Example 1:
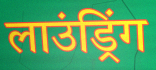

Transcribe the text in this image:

लाउंड्रिंग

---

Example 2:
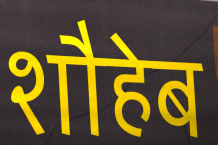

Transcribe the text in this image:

शौहेब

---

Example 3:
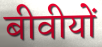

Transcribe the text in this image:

बीवीयों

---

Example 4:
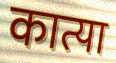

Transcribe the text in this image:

कात्या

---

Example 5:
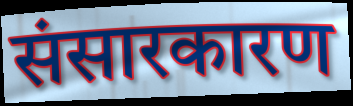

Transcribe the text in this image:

संसारकारण